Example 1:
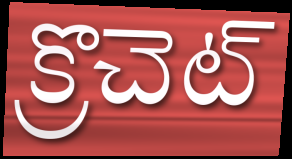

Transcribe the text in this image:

క్రొచెట్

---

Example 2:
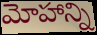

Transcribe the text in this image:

మోహాన్ని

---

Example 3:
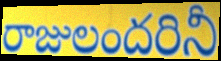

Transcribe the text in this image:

రాజులందరినీ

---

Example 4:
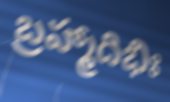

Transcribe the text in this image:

బ్రహ్మాదిభిః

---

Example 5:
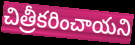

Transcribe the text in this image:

చిత్రీకరించాయని